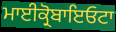
ਮਾਈਕ੍ਰੋਬਾਇਓਟਾ